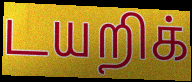
டயறிக்